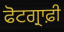
ਫੋਟਗ੍ਰਾਫ਼ੀ